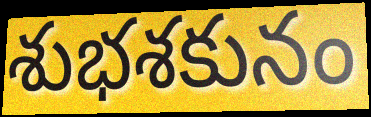
శుభశకునం